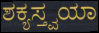
ಶಕ್ಯಸ್ತ್ವಯಾ